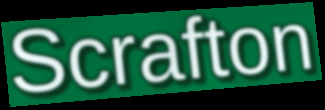
Scrafton